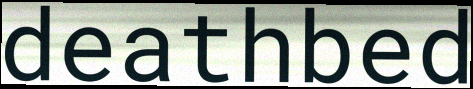
deathbed